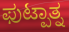
ಫುಟ್ಪಾತ್ನ